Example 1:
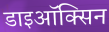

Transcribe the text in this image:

डाइऑक्सिन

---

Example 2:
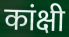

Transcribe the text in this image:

कांक्षी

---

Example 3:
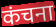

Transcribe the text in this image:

कंचना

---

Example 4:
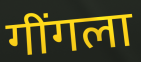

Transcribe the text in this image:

गींगला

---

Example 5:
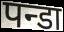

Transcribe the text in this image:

पन्डा